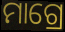
ମାଗ୍ରେ